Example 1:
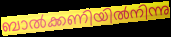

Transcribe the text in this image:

ബാൽക്കണിയിൽനിന്നു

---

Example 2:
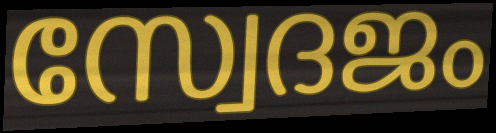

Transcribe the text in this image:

സ്വേദജം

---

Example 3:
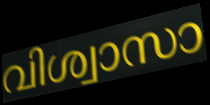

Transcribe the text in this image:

വിശ്വാസാ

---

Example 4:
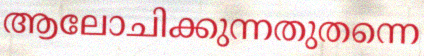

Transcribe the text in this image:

ആലോചിക്കുന്നതുതന്നെ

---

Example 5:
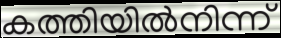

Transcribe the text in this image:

കത്തിയിൽനിന്ന്